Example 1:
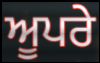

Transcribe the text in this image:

ਅੂਪਰੇ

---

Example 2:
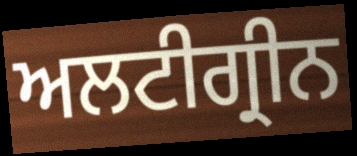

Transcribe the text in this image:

ਅਲਟੀਗ੍ਰੀਨ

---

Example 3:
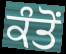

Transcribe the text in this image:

ਕੰਤੋਂ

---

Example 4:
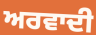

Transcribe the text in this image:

ਅਰਵਾਦੀ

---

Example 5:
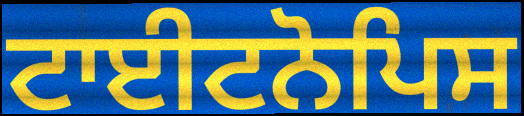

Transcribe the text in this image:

ਟਾਈਟਨੋਪਿਸ